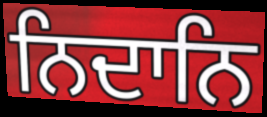
ਨਿਦਾਨਿ